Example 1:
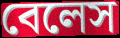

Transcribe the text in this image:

বেলেস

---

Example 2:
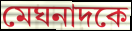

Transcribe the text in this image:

মেঘনাদকে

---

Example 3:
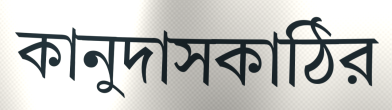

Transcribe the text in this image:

কানুদাসকাঠির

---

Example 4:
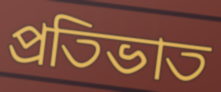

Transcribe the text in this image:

প্রতিভাত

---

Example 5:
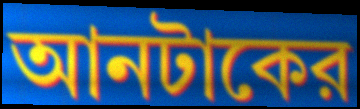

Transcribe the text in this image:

আনটাকের